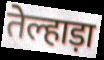
तेल्हाड़ा